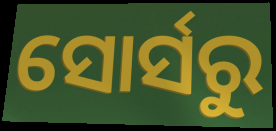
ସୋର୍ସରୁ